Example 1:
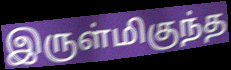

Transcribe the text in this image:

இருள்மிகுந்த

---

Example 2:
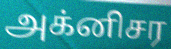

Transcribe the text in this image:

அக்னிசர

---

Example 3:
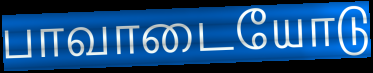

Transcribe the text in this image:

பாவாடையோடு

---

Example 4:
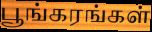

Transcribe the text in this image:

பூங்கரங்கள்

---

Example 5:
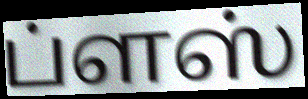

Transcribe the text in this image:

ப்ளஸ்